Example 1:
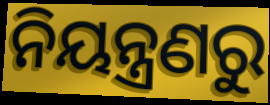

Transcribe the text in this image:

ନିୟନ୍ତ୍ରଣରୁ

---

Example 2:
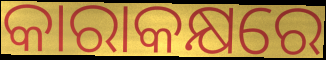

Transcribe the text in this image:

କାରାକକ୍ଷରେ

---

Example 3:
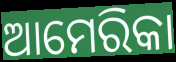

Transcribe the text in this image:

ଆମେରିକା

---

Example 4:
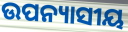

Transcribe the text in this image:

ଉପନ୍ୟାସୀୟ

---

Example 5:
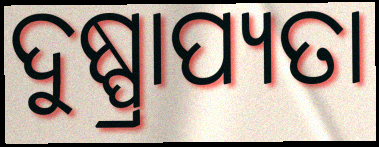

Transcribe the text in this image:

ଦୁଷ୍ପ୍ରାପ୍ୟତା